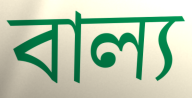
বাল্য